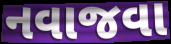
નવાજવા